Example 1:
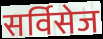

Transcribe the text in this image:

सर्विसेज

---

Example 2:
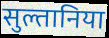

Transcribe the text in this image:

सुल्तानिया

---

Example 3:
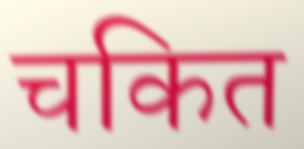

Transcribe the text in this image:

चकित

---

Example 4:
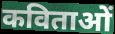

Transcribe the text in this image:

कविताओं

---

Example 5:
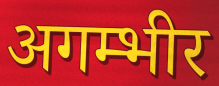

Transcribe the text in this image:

अगम्भीर